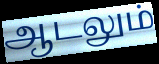
ஆடலும்